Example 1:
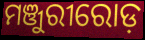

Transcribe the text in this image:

ମଞ୍ଜୁରୀରୋଡ଼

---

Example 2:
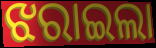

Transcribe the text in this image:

ଝରାଇଲା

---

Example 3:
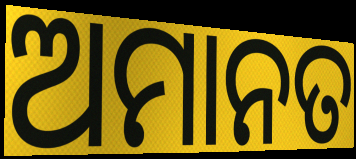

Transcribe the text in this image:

ଅମାନତ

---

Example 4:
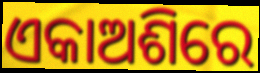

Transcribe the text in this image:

ଏକାଅଶିରେ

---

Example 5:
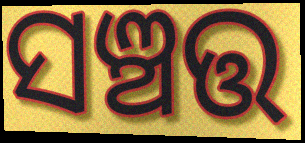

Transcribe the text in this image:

ସଞ୍ଚତ୍ତ